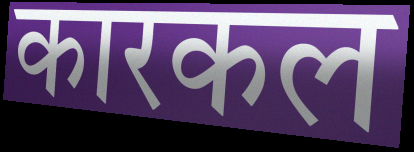
कारकल